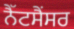
ਨੈੱਟਸੈਂਸਰ